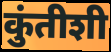
कुंतीशी